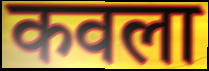
कवला